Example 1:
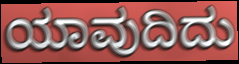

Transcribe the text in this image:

ಯಾವುದಿದು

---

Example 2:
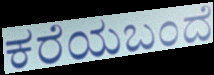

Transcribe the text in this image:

ಕರೆಯಬಂದೆ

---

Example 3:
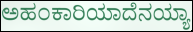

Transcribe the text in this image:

ಅಹಂಕಾರಿಯಾದೆನಯ್ಯಾ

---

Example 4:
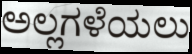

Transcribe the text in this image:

ಅಲ್ಲಗಳೆಯಲು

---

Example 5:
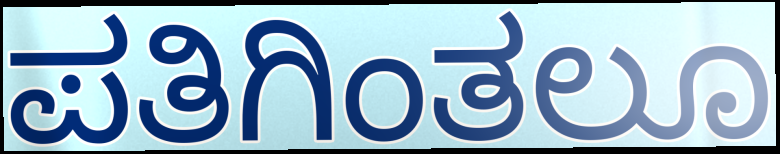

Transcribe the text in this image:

ಪತಿಗಿಂತಲೂ